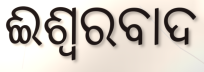
ଈଶ୍ୱରବାଦ